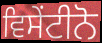
ਵਿਸੇਂਟੀਨੋ